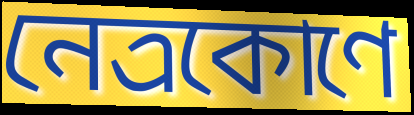
নেত্রকোণে